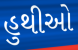
હુથીઓ